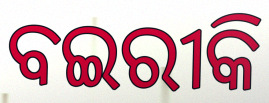
ବଇରୀକି